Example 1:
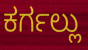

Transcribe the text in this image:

ಕರ್ಗಲ್ಲು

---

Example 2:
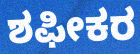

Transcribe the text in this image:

ಶಫೀಕರ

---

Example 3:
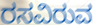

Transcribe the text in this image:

ರಸವಿರುವ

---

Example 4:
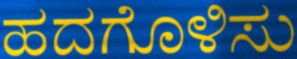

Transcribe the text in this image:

ಹದಗೊಳಿಸು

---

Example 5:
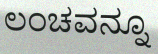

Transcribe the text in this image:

ಲಂಚವನ್ನೂ